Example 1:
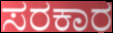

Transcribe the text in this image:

ಸರಕಾರ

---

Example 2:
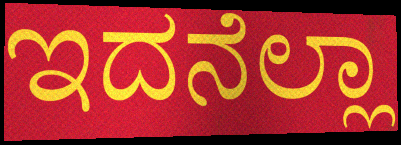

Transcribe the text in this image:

ಇದನೆಲ್ಲಾ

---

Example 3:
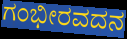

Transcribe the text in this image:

ಗಂಭೀರವದನ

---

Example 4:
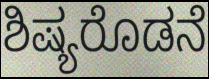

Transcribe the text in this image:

ಶಿಷ್ಯರೊಡನೆ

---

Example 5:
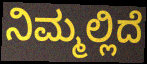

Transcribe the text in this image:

ನಿಮ್ಮಲ್ಲಿದೆ